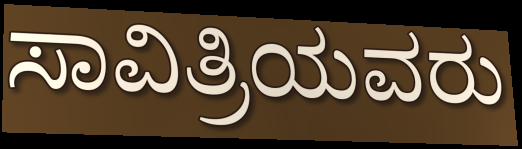
ಸಾವಿತ್ರಿಯವರು